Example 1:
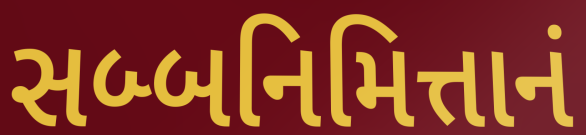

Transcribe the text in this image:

સબ્બનિમિત્તાનં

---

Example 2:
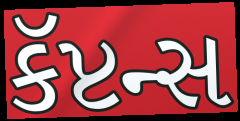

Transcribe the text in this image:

કૅપ્ટન્સ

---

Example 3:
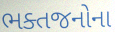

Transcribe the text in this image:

ભક્તજનોના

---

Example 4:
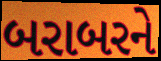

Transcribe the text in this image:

બરાબરને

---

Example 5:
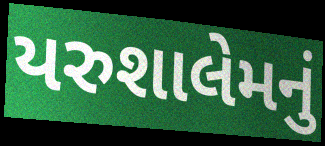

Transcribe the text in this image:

યરુશાલેમનું